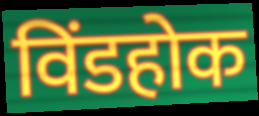
विंडहोक